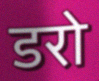
डरो